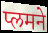
प्लमने